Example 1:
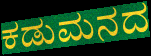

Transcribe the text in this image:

ಕಡುಮನದ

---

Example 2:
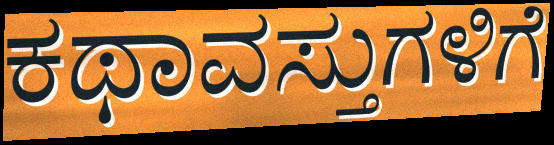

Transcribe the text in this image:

ಕಥಾವಸ್ತುಗಳಿಗೆ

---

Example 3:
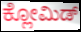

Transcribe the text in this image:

ಕ್ಲೋಮಿಡ್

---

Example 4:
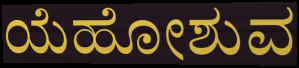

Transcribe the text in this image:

ಯೆಹೋಶುವ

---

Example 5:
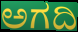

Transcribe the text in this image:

ಅಗದಿ